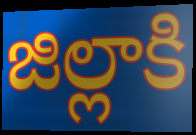
జిల్లాకి